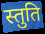
स्तुति